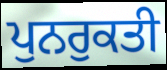
ਪੁਨਰੁਕਤੀ